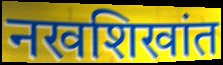
नखशिखांत